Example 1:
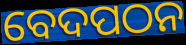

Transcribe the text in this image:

ବେଦପଠନ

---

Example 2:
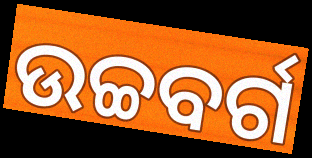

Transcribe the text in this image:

ଉଚ୍ଚବର୍ଗ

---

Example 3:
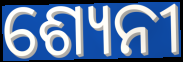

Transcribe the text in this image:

ଶ୍ୟେନୀ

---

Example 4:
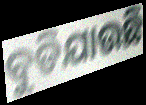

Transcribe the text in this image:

ବୁଡିଯାଉଛି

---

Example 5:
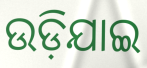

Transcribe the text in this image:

ଉଡ଼ିଯାଇ